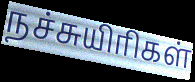
நச்சுயிரிகள்